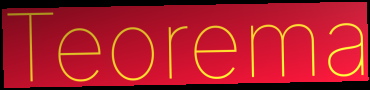
Teorema